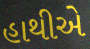
હાથીએ